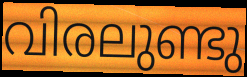
വിരലുണ്ടു